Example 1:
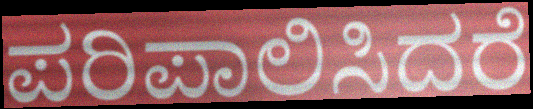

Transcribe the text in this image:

ಪರಿಪಾಲಿಸಿದರೆ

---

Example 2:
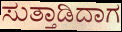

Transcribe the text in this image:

ಸುತ್ತಾಡಿದಾಗ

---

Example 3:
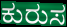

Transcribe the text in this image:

ಕುರುಸ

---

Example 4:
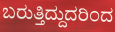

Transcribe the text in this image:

ಬರುತ್ತಿದ್ದುದರಿಂದ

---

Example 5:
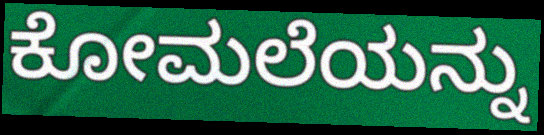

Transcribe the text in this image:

ಕೋಮಲೆಯನ್ನು